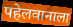
पहेलवानाला